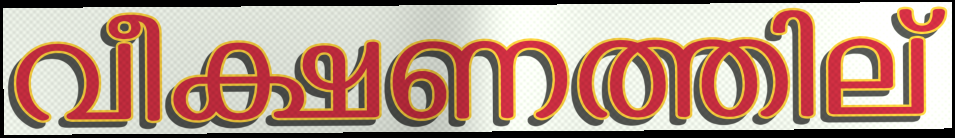
വീക്ഷണത്തില്